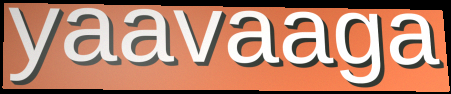
yaavaaga